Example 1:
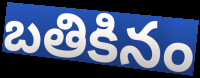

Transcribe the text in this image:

బతికినం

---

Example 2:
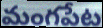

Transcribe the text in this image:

మంగపేట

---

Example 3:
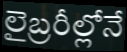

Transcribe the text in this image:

లైబ్రరీల్లోనే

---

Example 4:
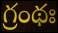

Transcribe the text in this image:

గ్రంథః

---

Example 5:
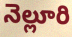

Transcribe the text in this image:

నెల్లూరి